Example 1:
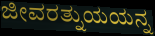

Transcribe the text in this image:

ಜೀವರತ್ನುಯಯನ್ನ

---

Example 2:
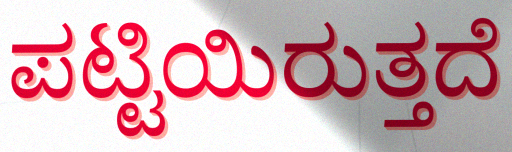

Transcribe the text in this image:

ಪಟ್ಟಿಯಿರುತ್ತದೆ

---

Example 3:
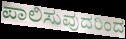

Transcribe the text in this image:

ಪಾಲಿಸುವುದರಿಂದ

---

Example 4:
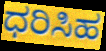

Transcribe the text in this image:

ಧರಿಸಿಹ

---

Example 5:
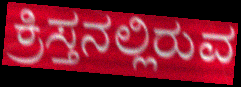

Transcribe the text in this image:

ಕ್ರಿಸ್ತನಲ್ಲಿರುವ